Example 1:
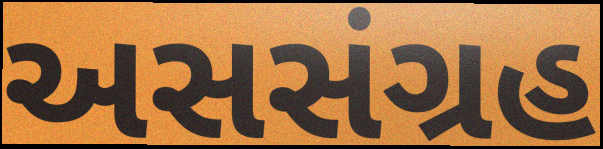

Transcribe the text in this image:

અસસંગ્રહ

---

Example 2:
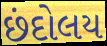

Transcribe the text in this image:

છંદોલય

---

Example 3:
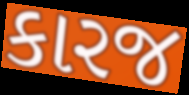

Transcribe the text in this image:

કારજ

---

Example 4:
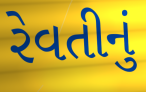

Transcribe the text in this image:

રેવતીનું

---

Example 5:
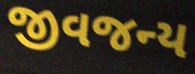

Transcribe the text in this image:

જીવજન્ય